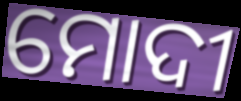
ମୋଦୀ